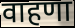
वाहणा